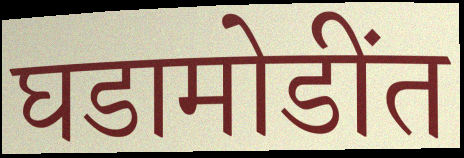
घडामोडींत